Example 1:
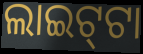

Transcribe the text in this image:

ଲାଇଟ୍‍ଟା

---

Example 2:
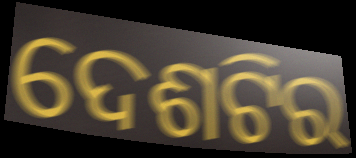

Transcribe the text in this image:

ଦେଶଟିର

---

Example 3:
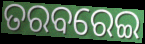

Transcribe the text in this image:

ତରବରେଇ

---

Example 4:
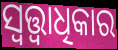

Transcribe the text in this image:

ସ୍ୱତ୍ତ୍ୱାଧିକାର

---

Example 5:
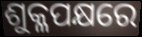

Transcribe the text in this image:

ଶୁକ୍ଳପକ୍ଷରେ